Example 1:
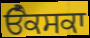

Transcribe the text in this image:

ਓੈਕਸਕਾ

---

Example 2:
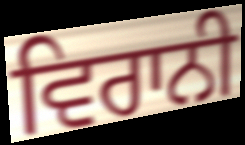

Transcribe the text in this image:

ਵਿਰਾਨੀ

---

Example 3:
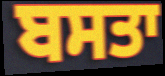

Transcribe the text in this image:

ਬਸਤਾ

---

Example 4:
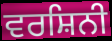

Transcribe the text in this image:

ਵਰਸ਼ਿਨੀ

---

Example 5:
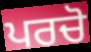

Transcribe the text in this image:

ਪਰਚੋ